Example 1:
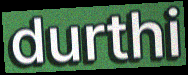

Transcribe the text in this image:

durthi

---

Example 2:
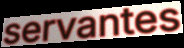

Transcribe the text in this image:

servantes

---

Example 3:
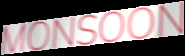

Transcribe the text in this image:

MONSOON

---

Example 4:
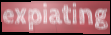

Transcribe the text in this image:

expiating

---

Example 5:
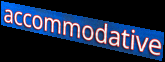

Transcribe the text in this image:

accommodative